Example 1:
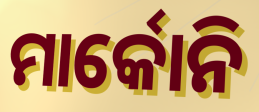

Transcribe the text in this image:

ମାର୍କୋନି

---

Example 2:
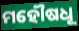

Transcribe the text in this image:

ମହୌଷଧୂ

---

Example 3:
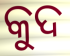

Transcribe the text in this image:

କୁଦ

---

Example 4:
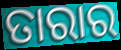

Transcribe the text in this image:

ତାରାର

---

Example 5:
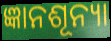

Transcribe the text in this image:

ଜ୍ଞାନଶୂନ୍ୟା